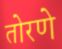
तोरणे